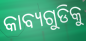
କାବ୍ୟଗୁଡିକୁ